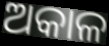
ଅକାଳ